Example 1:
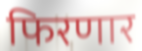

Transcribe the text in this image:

फिरणार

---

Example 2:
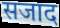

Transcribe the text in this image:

सजाद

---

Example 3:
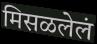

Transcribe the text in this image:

मिसळलेलं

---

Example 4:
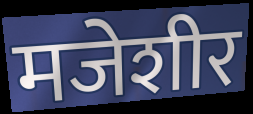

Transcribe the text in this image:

मजेशीर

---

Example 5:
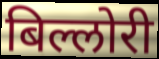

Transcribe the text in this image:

बिल्लोरी